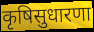
कृषिसुधारणा